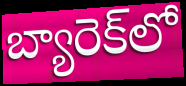
బ్యారెక్‌లో